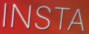
INSTA